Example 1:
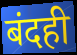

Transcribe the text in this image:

बंदही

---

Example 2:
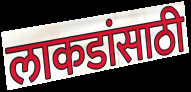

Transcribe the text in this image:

लाकडांसाठी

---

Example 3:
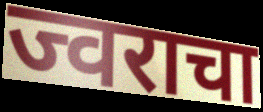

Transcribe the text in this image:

ज्वराचा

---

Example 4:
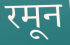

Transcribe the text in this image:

रमून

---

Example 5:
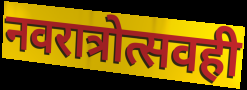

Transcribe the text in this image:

नवरात्रोत्सवही